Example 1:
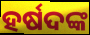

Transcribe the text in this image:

ହର୍ଷଦଙ୍କ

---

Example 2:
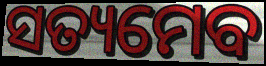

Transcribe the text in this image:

ସତ୍ୟମେବ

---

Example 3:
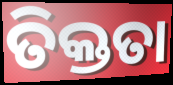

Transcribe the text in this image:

ତିକ୍ତତା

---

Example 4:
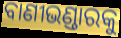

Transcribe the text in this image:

ବାଣୀଭଣ୍ଡାରକୁ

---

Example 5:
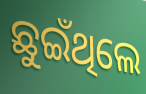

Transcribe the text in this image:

ଛୁଇଁଥିଲେ